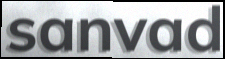
sanvad